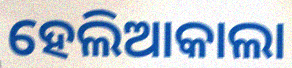
ହେଲିଆକାଲା